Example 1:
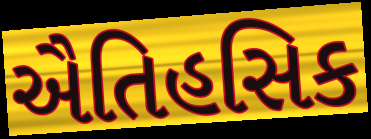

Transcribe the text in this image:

ઐતિહસિક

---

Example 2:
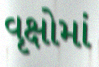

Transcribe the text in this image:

વૃક્ષોમાં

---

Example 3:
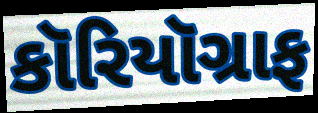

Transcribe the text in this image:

કૉરિયૉગ્રાફ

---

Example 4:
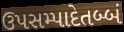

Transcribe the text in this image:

ઉપસમ્પાદેતબ્બં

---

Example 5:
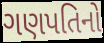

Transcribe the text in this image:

ગણપતિનો